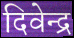
दिवेन्द्र